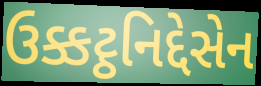
ઉક્કટ્ઠનિદ્દેસેન